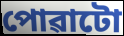
পোৱাটো